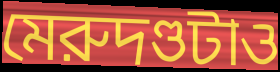
মেরুদণ্ডটাও